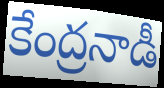
కేంద్రనాడీ